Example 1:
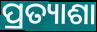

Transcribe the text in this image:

ପ୍ରତ୍ୟାଶା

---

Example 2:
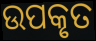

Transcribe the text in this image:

ଉପକୃତ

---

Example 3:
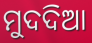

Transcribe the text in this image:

ମୁଦଦିଆ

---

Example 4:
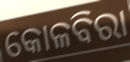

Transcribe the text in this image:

କୋଳବିରା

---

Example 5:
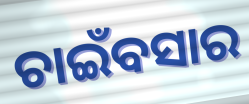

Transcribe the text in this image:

ଚାଇଁବସାର